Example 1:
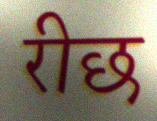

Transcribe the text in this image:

रीछ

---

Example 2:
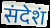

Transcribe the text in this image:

संदेशं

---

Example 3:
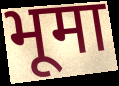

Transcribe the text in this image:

भूमा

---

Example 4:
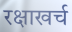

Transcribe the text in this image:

रक्षाखर्च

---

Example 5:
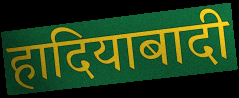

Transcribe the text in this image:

हादियाबादी